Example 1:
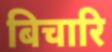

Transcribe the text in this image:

बिचारि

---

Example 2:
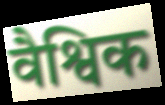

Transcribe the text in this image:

वैश्विक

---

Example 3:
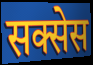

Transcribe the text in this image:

सक्सेस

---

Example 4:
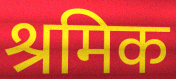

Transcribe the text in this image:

श्रमिक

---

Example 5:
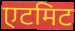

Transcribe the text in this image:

एटमिट